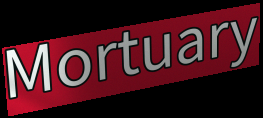
Mortuary